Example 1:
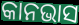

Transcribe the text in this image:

କାନଭାସ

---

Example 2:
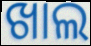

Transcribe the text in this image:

ଖାଲ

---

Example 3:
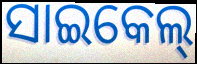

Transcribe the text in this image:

ସାଇକେଲ୍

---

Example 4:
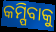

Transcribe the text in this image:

କମ୍ପିବାକୁ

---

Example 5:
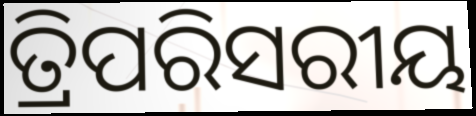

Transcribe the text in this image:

ତ୍ରିପରିସରୀୟ